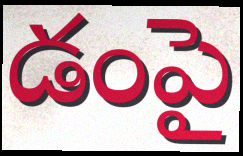
డంపై